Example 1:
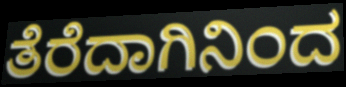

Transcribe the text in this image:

ತೆರೆದಾಗಿನಿಂದ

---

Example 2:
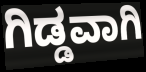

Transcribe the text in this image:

ಗಿಡ್ಡವಾಗಿ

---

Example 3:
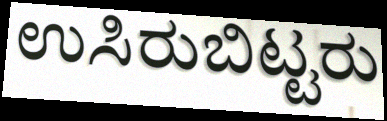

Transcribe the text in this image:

ಉಸಿರುಬಿಟ್ಟರು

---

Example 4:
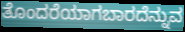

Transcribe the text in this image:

ತೊಂದರೆಯಾಗಬಾರದೆನ್ನುವ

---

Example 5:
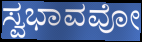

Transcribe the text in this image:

ಸ್ವಭಾವವೋ